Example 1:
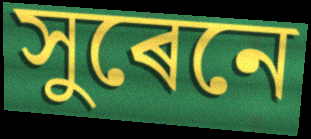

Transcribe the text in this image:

সুৰেনে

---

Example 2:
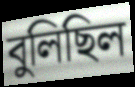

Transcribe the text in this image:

বুলিছিল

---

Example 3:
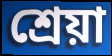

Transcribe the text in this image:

শ্ৰেয়া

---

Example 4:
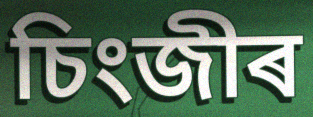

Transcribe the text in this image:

চিংজীৰ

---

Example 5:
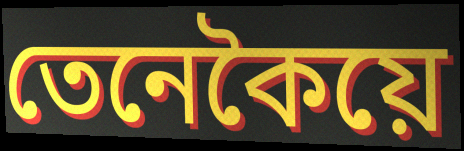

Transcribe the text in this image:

তেনেকৈয়ে